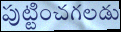
పుట్టించగలడు